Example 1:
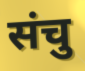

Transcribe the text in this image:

संचु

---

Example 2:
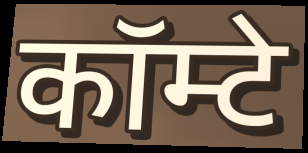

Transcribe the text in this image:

कॉम्टे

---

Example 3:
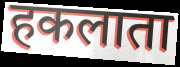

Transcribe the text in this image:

हकलाता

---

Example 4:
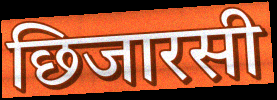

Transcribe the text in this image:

छिजारसी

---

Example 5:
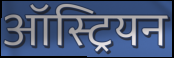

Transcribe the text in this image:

ऑस्ट्रियन